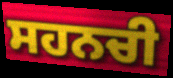
ਸਹਨਚੀ